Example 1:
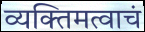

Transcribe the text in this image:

व्यक्तिमत्वाचं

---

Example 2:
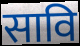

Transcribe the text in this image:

सावि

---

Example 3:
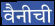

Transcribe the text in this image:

वैनीची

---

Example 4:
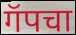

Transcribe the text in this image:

गॅपचा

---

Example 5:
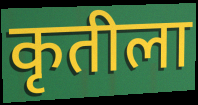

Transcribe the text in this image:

कृतीला